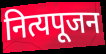
नित्यपूजन